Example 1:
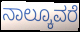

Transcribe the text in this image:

ನಾಲ್ಕೂವರೆ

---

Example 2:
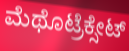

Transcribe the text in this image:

ಮೆಥೊಟ್ರೆಕ್ಸೇಟ್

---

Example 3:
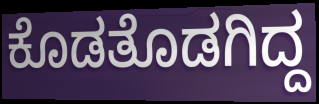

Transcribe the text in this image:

ಕೊಡತೊಡಗಿದ್ದ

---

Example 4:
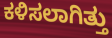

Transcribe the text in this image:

ಕಳಿಸಲಾಗಿತ್ತು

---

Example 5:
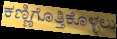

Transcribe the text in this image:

ಕಣ್ಣಿಗೊತ್ತಿಕೊಳ್ಳಲು